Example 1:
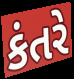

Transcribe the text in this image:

કંતરે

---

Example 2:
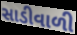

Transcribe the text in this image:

સાડીવાળી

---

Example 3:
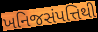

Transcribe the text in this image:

ખનિજસંપત્તિથી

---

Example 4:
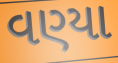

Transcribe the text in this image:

વણ્યા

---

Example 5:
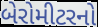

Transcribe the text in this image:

બેરોમીટરનો